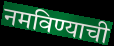
नमविण्याची